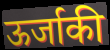
ऊर्जाकी